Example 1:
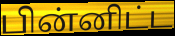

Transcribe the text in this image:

பின்னிட்ட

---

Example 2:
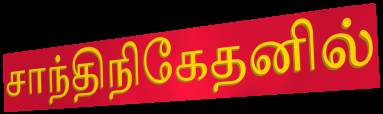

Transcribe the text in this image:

சாந்திநிகேதனில்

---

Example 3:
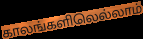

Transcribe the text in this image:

காலங்களிலெல்லாம்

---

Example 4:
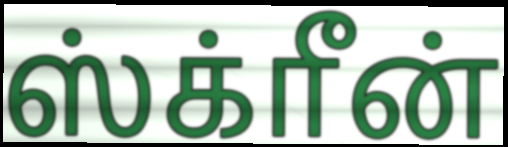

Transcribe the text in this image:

ஸ்க்ரீன்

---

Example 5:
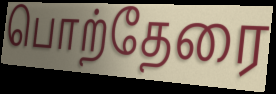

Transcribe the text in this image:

பொற்தேரை